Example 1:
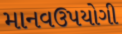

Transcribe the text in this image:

માનવઉપયોગી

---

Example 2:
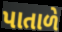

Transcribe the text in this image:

પાતાળે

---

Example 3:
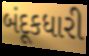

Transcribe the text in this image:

બંદૂકધારી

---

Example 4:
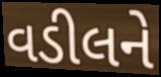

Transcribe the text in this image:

વડીલને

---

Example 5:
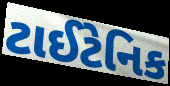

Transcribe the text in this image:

ટાઈટેનિક